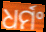
ଧର୍ମଂ